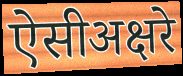
ऐसीअक्षरे